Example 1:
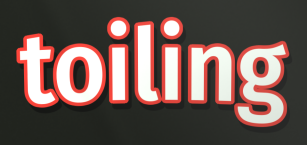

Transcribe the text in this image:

toiling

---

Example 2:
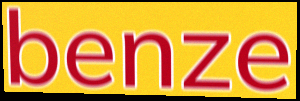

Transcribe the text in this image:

benze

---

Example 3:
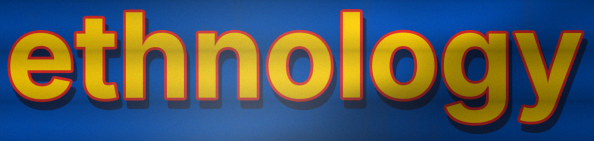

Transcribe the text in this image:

ethnology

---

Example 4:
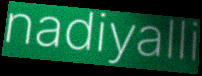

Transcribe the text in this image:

nadiyalli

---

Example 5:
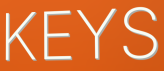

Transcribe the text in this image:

KEYS